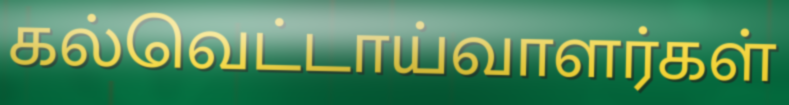
கல்வெட்டாய்வாளர்கள்